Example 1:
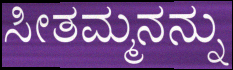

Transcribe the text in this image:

ಸೀತಮ್ಮನನ್ನು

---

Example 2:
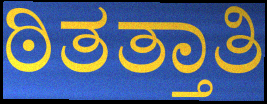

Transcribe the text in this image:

ಠಿತತ್ತಾತಿ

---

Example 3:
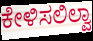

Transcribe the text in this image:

ಕೇಳಿಸಲಿಲ್ವಾ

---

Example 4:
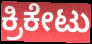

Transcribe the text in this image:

ಕ್ರಿಕೇಟು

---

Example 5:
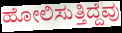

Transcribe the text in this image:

ಹೋಲಿಸುತ್ತಿದ್ದೆವು